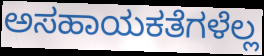
ಅಸಹಾಯಕತೆಗಳೆಲ್ಲ